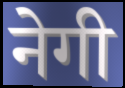
नेगी